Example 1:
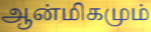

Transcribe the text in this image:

ஆன்மிகமும்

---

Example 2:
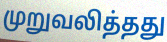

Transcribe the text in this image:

முறுவலித்தது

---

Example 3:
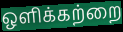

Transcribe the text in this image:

ஒளிக்கற்றை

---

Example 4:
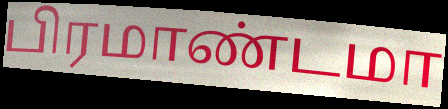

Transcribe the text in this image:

பிரமாண்டமா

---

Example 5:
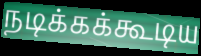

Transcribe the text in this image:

நடிக்கக்கூடிய